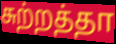
சுற்றத்தா